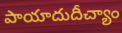
పాయాదుదీచ్యాం